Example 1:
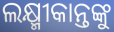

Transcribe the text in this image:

ଲକ୍ଷ୍ମୀକାନ୍ତଙ୍କୁ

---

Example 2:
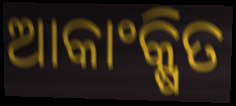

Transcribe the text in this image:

ଆକାଂକ୍ଷିତ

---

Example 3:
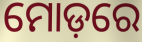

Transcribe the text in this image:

ମୋଡ଼ରେ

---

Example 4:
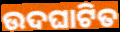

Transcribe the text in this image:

ଉଦଘାଟିତ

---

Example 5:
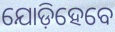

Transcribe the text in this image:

ଯୋଡ଼ିହେବେ